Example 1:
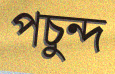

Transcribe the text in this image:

পচুন্দ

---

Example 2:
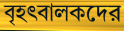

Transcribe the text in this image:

বৃহৎবালকদের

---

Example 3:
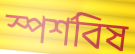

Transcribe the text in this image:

স্পর্শবিষ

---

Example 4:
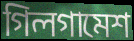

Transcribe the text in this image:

গিলগামেশ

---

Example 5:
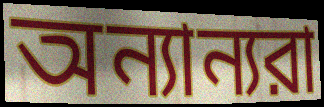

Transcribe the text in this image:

অন্যান্যরা